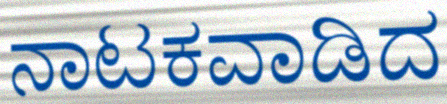
ನಾಟಕವಾಡಿದ